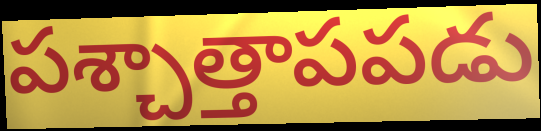
పశ్చాత్తాపపడు